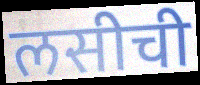
लसीची